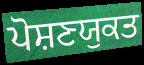
ਪੋਸ਼ਣਯੁਕਤ